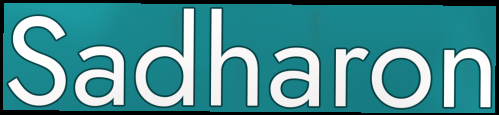
Sadharon